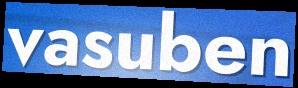
vasuben